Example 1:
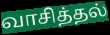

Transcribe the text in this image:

வாசித்தல்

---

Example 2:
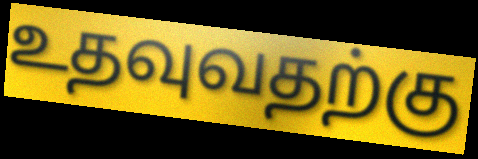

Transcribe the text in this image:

உதவுவதற்கு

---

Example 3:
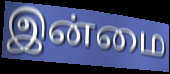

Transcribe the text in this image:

இன்மை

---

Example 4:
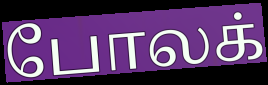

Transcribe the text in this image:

போலக்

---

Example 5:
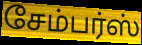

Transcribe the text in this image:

சேம்பர்ஸ்